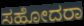
ಸಹೋದರಾ